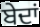
ਬੇਦਾਂ